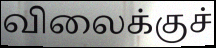
விலைக்குச்